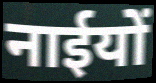
नाईयों